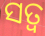
ସତ୍ୱ